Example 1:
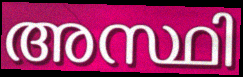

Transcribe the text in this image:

അസ്ഥി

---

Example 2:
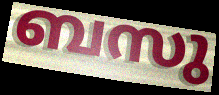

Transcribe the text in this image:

ബസു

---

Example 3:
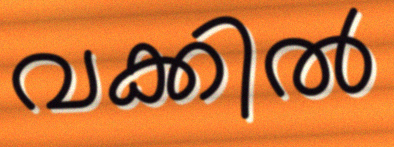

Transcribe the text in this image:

വക്കിൽ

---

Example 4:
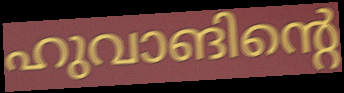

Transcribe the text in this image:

ഹുവാങിന്റെ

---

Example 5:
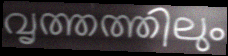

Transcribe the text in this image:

വൃത്തത്തിലും